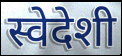
स्वेदेशी